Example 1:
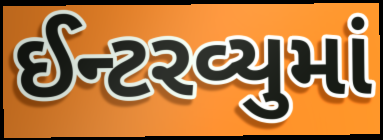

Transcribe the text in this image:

ઈન્ટરવ્યુમાં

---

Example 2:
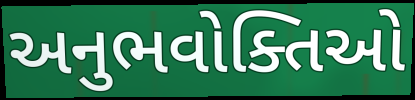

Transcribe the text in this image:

અનુભવોક્તિઓ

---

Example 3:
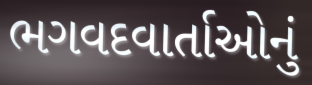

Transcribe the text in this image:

ભગવદવાર્તાઓનું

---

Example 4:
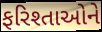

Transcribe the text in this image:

ફરિશ્તાઓને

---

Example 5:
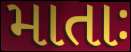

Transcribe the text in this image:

માતાઃ